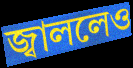
জ্বাললেও